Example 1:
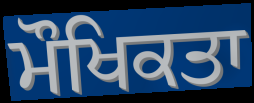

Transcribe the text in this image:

ਮੌਖਿਕਤਾ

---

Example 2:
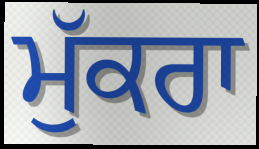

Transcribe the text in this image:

ਮੁੱਕਰਾ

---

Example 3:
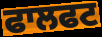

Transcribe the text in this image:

ਫਾਲਫਟ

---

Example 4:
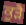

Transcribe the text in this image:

ਕੂੜੈ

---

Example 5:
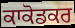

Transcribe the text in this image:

ਕਾਕੋਡਕਰ